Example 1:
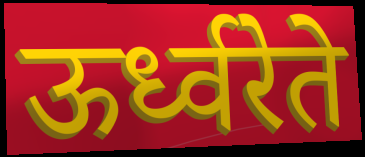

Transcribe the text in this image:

ऊर्ध्वरेते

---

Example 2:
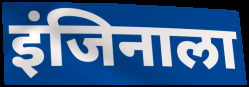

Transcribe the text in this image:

इंजिनाला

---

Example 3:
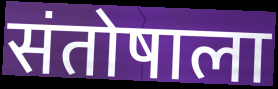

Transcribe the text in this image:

संतोषाला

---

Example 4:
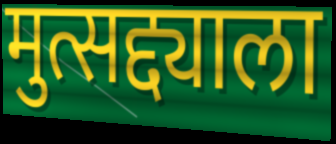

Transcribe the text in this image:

मुत्सद्द्याला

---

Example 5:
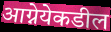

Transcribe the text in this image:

आग्नेयेकडील